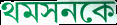
থমসনকে